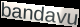
bandavu